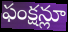
ఫంక్షన్లూ